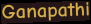
Ganapathi